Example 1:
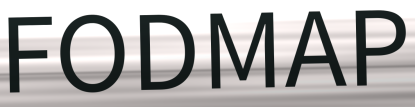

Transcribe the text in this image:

FODMAP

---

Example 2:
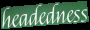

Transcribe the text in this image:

headedness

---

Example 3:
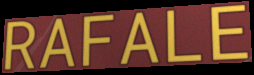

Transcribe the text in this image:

RAFALE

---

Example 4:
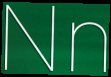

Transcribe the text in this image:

Nn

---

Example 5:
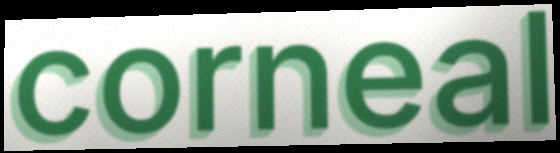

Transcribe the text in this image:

corneal